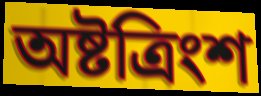
অষ্টত্রিংশ